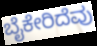
ಬೈಕೇರಿದೆವು